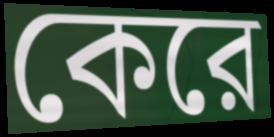
কেরে